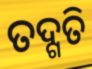
ତଦ୍ଗତି